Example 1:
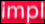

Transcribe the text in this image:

impl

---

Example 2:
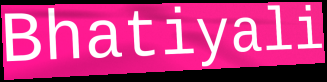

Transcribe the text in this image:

Bhatiyali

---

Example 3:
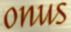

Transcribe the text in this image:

onus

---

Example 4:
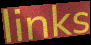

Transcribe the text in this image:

links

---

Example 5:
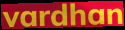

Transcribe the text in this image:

vardhan